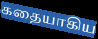
கதையாகிய